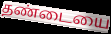
தண்டையை